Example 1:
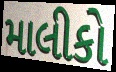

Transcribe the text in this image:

માલીકો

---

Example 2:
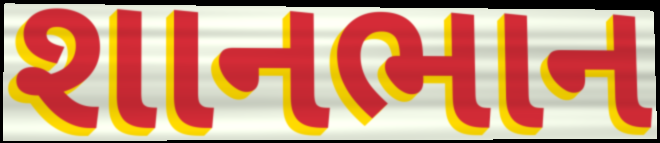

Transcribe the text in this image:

શાનભાન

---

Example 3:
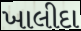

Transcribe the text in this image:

ખાલીદા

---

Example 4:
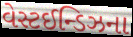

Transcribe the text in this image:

વેસ્ટઈન્ડિઝના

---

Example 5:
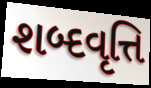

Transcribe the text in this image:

શબ્દવૃત્તિ